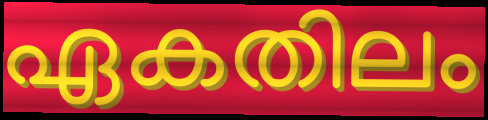
ഏകതിലം